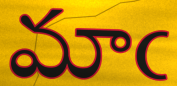
మాఁ